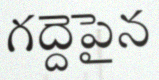
గద్దెపైన